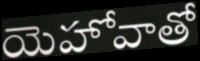
యెహోవాతో